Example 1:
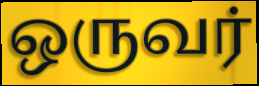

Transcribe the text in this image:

ஒருவர்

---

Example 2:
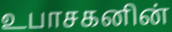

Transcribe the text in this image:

உபாசகனின்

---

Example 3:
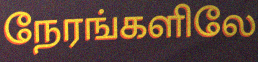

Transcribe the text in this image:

நேரங்களிலே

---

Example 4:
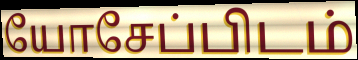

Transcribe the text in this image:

யோசேப்பிடம்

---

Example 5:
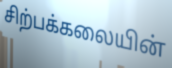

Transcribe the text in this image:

சிற்பக்கலையின்